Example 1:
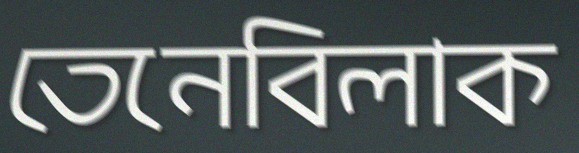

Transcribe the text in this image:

তেনেবিলাক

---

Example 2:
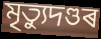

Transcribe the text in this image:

মৃত্যুদণ্ডৰ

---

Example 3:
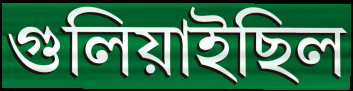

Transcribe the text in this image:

গুলিয়াইছিল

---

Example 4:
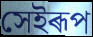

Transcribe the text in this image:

সেইৰূপ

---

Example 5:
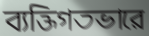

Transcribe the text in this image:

ব্যক্তিগতভাৱে